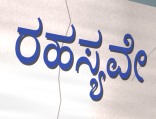
ರಹಸ್ಯವೇ